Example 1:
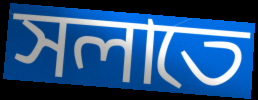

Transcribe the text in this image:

সলাতে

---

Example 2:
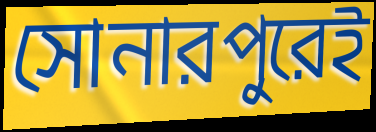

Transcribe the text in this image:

সোনারপুরেই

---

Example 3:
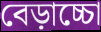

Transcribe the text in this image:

বেড়াচ্চো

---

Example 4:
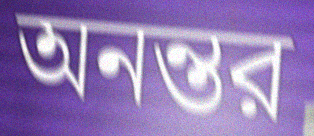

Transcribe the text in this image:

অনন্তর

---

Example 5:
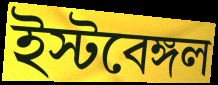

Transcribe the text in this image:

ইস্টবেঙ্গল